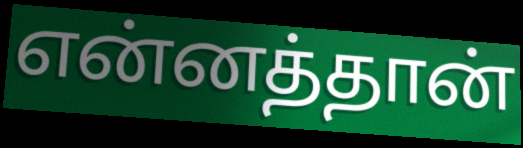
என்னத்தான்